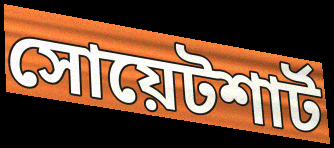
সোয়েটশার্ট